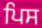
ਪਿਸ